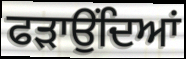
ਫੜਾਉਂਦਿਆਂ